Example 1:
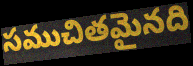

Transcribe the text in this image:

సముచితమైనది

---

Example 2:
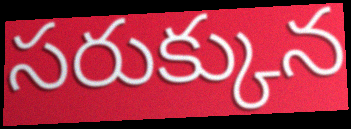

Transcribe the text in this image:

సరుక్కున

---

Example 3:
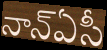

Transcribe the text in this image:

నాన్ఏసీ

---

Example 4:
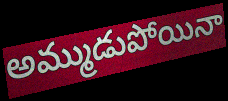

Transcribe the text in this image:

అమ్ముడుపోయినా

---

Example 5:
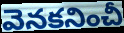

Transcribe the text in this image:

వెనకనించీ